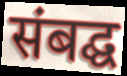
संबद्घ